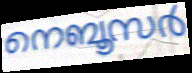
നെബൂസർ